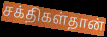
சக்திகள்தான்